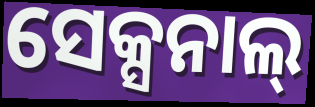
ସେକ୍ସନାଲ୍